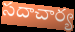
సదాచార్య